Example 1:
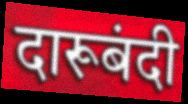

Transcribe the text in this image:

दारूबंदी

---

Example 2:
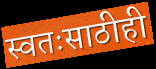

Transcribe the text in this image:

स्वतःसाठीही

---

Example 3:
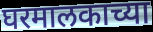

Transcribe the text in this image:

घरमालकाच्या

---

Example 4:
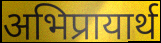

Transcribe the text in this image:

अभिप्रायार्थ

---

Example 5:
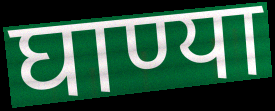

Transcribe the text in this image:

घाण्या